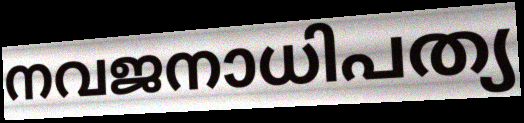
നവജനാധിപത്യ